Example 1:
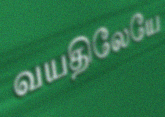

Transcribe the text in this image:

வயதிலேயே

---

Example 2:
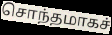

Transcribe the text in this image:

சொந்தமாகச்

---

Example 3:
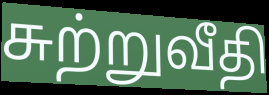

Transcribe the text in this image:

சுற்றுவீதி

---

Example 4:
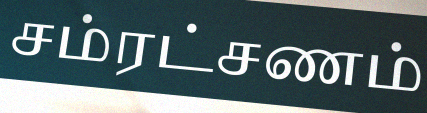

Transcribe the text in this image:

சம்ரட்சணம்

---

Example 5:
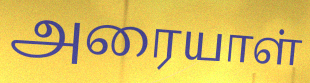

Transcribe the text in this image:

அரையாள்